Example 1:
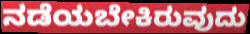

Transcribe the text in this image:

ನಡೆಯಬೇಕಿರುವುದು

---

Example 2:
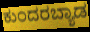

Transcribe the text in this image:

ಕುಂದರಬ್ಯಾಡ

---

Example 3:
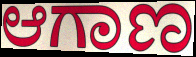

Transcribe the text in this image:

ಆಗಾಣ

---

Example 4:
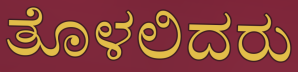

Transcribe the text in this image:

ತೊಳಲಿದರು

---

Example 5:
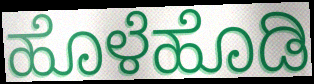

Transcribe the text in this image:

ಹೊಳೆಹೊಡಿ